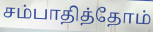
சம்பாதித்தோம்